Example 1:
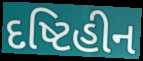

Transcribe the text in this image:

દષ્ટિહીન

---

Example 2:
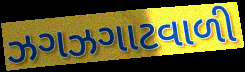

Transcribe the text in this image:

ઝગઝગાટવાળી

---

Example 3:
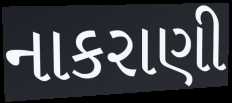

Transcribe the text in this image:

નાકરાણી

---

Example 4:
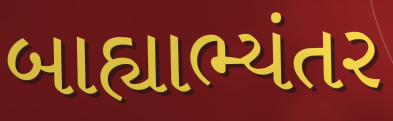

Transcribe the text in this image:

બાહ્યાભ્યંતર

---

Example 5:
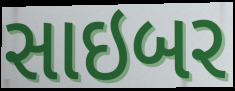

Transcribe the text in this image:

સાઇબર